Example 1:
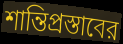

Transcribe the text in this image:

শান্তিপ্রস্তাবের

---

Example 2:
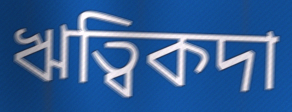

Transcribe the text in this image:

ঋত্বিকদা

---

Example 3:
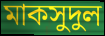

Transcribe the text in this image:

মাকসুদুল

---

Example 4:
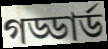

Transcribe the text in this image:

গড্ডার্ড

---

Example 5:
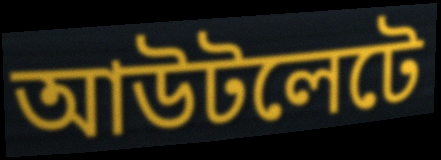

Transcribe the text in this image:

আউটলেটে